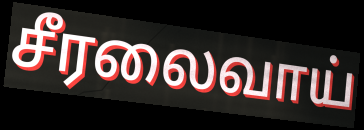
சீரலைவாய்